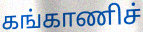
கங்காணிச்